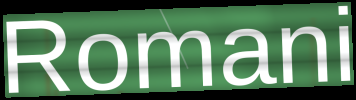
Romani